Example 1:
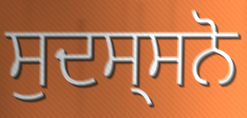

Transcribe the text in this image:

ਸੁਦਸ੍ਸਨੋ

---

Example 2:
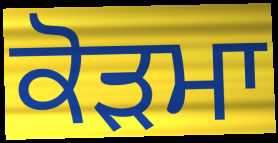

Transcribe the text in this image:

ਕੋੜਮਾ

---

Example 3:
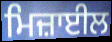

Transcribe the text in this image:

ਮਿਜ਼ਾਈਲ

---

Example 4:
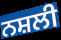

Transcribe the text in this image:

ਨਸ਼ਲੀ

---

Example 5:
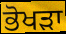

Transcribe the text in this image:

ਭੋਖੜਾ